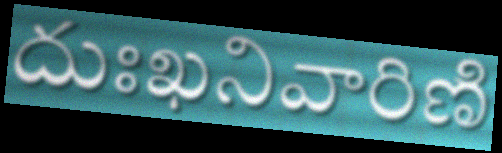
దుఃఖనివారిణి